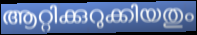
ആറ്റിക്കുറുക്കിയതും